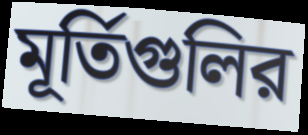
মূর্তিগুলির